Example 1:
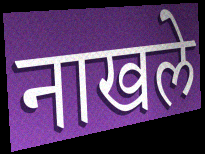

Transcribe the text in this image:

नाखले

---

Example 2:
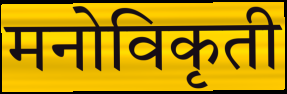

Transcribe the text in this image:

मनोविकृती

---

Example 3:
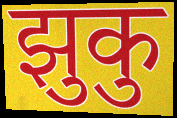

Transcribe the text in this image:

झुकु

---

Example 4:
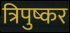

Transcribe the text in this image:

त्रिपुष्कर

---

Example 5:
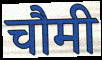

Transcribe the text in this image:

चौमी